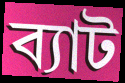
ব্যাট